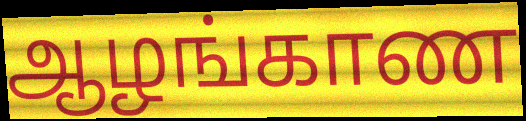
ஆழங்காண